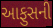
આફુસની